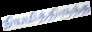
நியமித்திருந்த